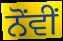
ਨੋਂਵੀਂ